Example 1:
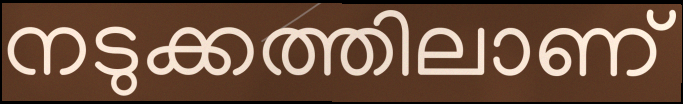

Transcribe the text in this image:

നടുക്കത്തിലാണ്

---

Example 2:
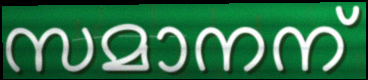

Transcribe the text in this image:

സമാനന്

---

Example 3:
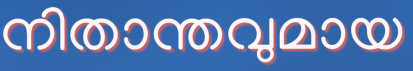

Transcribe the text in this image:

നിതാന്തവുമായ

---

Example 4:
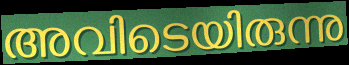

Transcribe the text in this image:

അവിടെയിരുന്നു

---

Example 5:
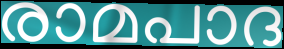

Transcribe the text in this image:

രാമപാദ